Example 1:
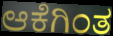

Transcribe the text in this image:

ಆಕೆಗಿಂತ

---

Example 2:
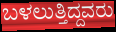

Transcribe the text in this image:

ಬಳಲುತ್ತಿದ್ದವರು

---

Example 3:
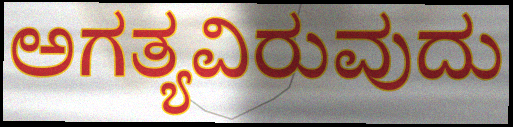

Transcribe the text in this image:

ಅಗತ್ಯವಿರುವುದು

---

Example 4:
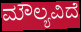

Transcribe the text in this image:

ಮೌಲ್ಯವಿದೆ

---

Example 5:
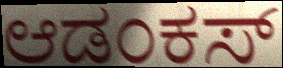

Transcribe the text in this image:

ಆಡಂಕಸ್